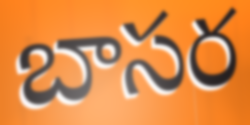
బాసర